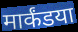
मार्कंडया